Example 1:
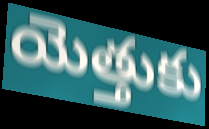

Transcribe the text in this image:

యెత్తుకు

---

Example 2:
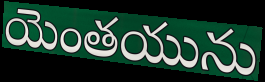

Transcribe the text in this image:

యెంతయును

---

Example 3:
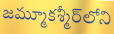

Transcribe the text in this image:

జమ్మూకశ్మీర్‌లోని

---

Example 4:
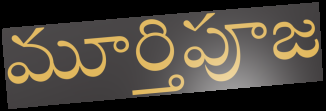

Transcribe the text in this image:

మూర్తిపూజ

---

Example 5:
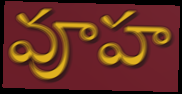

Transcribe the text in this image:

వూహ